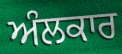
ਅੰਲਕਾਰ